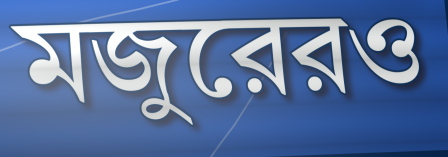
মজুরেরও